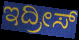
ಇದ್ರೀಸ್